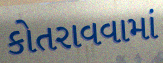
કોતરાવવામાં